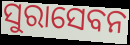
ସୁରାସେବନ